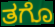
ತಗೊ